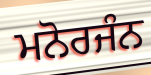
ਮਨੋਰਜੰਨ